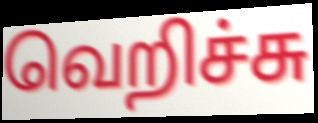
வெறிச்சு